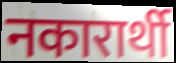
नकारार्थी